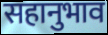
सहानुभाव